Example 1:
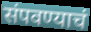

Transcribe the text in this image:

संपवण्याचं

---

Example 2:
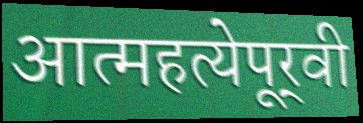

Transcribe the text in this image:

आत्महत्येपूर्वी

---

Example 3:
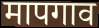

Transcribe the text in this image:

मापगाव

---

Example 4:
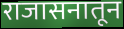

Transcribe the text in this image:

राजासनातून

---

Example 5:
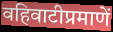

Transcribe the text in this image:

वहिवाटीप्रमाणें